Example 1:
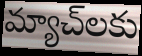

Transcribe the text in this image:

మ్యాచ్‌లకు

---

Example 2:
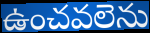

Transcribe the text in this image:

ఉంచవలెను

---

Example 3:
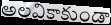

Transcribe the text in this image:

అలవికాకుండా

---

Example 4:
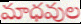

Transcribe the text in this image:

మాధవుల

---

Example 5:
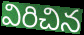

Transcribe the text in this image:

విరిచిన